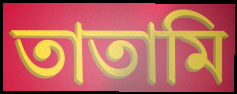
তাতামি